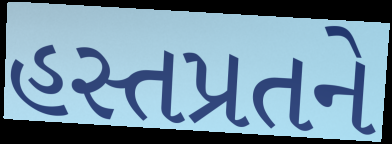
હસ્તપ્રતને